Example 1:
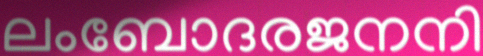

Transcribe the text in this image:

ലംബോദരജനനി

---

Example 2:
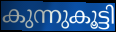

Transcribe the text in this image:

കുന്നുകൂട്ടി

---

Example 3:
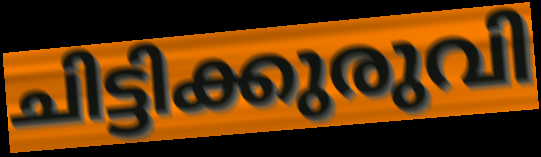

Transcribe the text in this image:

ചിട്ടിക്കുരുവി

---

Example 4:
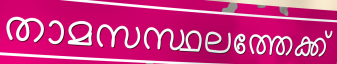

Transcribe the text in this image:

താമസസ്ഥലത്തേക്ക്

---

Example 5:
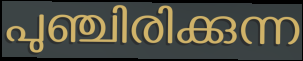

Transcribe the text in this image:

പുഞ്ചിരിക്കുന്ന